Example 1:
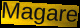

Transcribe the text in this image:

Magare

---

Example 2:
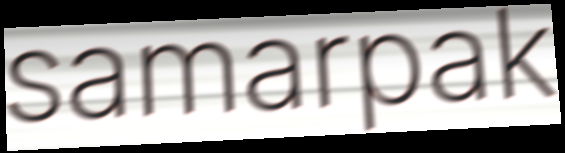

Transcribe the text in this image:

samarpak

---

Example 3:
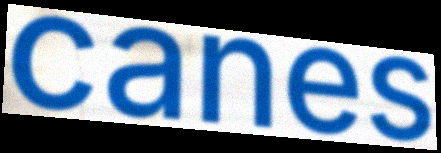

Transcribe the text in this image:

canes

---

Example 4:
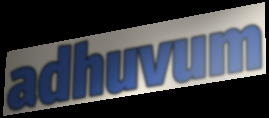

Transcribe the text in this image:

adhuvum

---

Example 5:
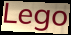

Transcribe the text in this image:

Lego